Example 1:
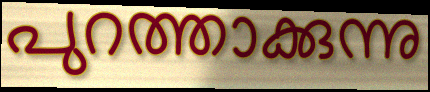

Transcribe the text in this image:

പുറത്താക്കുന്നു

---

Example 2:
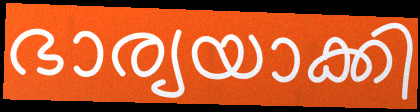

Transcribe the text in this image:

ഭാര്യയാക്കി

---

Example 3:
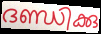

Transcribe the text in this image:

ദണ്ഡിക്കു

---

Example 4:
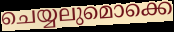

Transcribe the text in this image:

ചെയ്യലുമൊക്കെ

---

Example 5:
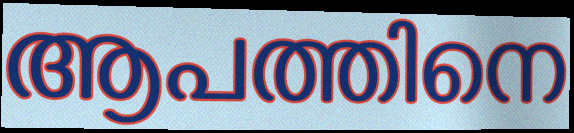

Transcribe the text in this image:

ആപത്തിനെ